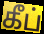
கீப்